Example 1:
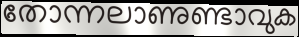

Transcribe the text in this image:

തോന്നലാണുണ്ടാവുക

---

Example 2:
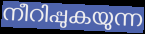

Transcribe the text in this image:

നീറിപ്പുകയുന്ന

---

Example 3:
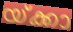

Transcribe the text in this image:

യ്‌ക്കാ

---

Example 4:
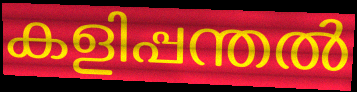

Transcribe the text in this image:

കളിപ്പന്തൽ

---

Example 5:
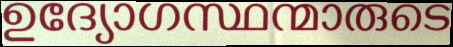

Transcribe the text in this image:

ഉദ്യോഗസ്ഥന്മാരുടെ